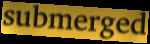
submerged